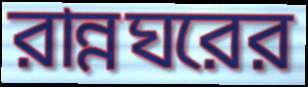
রান্নঘরের